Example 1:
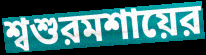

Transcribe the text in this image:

শ্বশুরমশায়ের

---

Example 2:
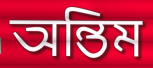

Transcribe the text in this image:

অন্তিম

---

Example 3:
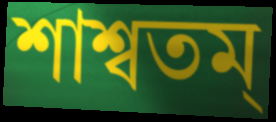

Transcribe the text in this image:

শাশ্বতম্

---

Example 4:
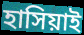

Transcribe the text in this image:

হাসিয়াই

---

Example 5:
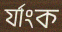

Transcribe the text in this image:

র্যাংক